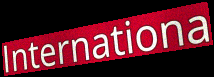
Internationa